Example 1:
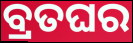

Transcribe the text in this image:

ବ୍ରତଘର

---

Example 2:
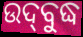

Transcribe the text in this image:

ଉଦ୍‍ବୁଦ୍ଧ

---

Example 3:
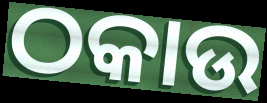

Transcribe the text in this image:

ଠକାଉ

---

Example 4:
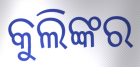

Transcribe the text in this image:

କୁଲିଙ୍କର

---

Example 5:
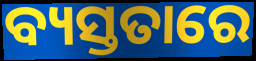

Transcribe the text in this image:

ବ୍ୟସ୍ତତାରେ